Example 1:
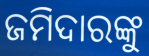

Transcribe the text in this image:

ଜମିଦାରଙ୍କୁ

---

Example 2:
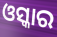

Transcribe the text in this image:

ଓସ୍କାର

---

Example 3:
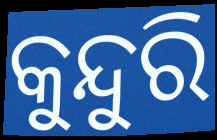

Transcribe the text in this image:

କୁନ୍ଦୁରି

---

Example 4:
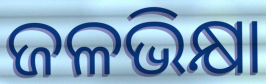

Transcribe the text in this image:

ଜଳଭିକ୍ଷା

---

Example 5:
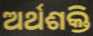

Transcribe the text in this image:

ଅର୍ଥଶକ୍ତି